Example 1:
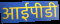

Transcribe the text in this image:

आईपीडी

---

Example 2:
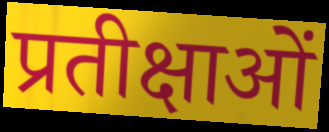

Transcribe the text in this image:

प्रतीक्षाओं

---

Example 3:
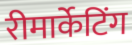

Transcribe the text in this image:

रीमार्केटिंग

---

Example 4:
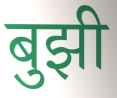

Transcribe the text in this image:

बुझी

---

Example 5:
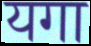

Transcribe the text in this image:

यगा